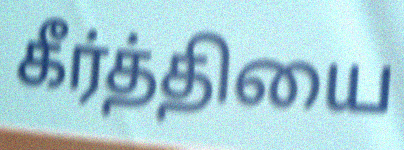
கீர்த்தியை